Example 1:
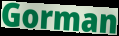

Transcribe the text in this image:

Gorman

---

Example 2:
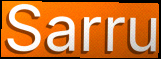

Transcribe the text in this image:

Sarru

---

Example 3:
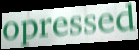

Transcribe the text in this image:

opressed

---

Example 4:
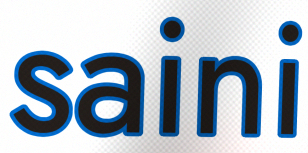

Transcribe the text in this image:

saini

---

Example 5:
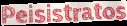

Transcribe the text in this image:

Peisistratos